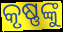
କୃଷ୍ଣଙ୍କୁ